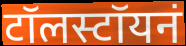
टॉलस्टॉयनं